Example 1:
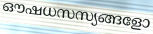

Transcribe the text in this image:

ഔഷധസസ്യങ്ങളോ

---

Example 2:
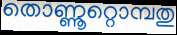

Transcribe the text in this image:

തൊണ്ണൂറ്റൊമ്പതു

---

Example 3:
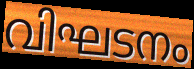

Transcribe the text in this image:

വിഘടനം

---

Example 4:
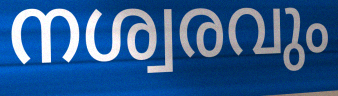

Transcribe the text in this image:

നശ്വരവും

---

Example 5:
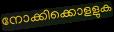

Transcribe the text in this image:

നോക്കിക്കൊളളുക